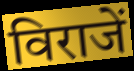
विराजें